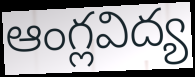
ఆంగ్లవిద్య